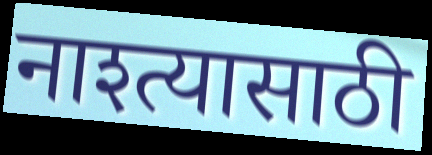
नाश्त्यासाठी